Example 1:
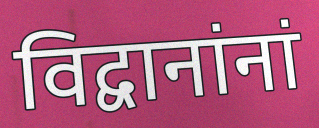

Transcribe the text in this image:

विद्वानांनां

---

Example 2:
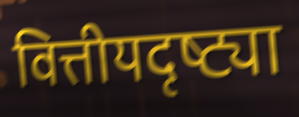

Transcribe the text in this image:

वित्तीयदृष्ट्या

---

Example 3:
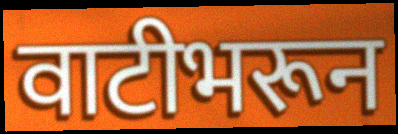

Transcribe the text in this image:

वाटीभरून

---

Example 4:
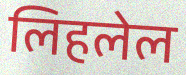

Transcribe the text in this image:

लिहलेल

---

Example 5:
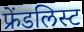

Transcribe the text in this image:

फ्रेंडलिस्ट